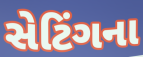
સેટિંગના